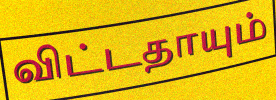
விட்டதாயும்